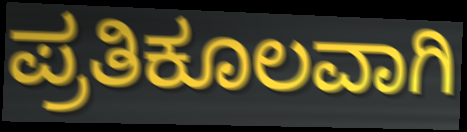
ಪ್ರತಿಕೂಲವಾಗಿ